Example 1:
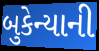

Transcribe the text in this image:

બુકેન્યાની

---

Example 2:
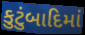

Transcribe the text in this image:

કુટુંબાદિમાં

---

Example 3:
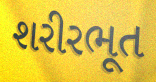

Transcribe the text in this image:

શરીરભૂત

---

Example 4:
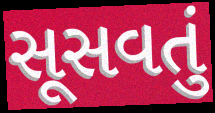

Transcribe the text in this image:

સૂસવતું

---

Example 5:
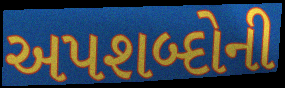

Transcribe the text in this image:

અપશબ્દોની